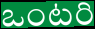
ఒంటరి